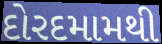
દોરદમામથી